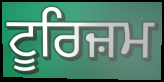
ਟੂਰਿਜ਼ਮ